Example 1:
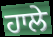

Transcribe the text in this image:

ਹਾਲੇ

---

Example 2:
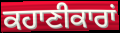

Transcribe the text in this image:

ਕਹਾਣੀਕਾਰਾਂ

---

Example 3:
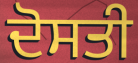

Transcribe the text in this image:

ਦੋਸਤੀ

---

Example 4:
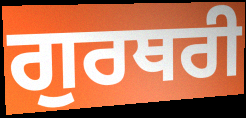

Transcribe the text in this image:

ਗੁਰਥਰੀ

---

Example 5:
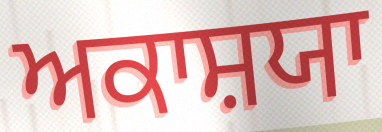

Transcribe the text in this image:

ਅਕਾਸ਼ਯਾ